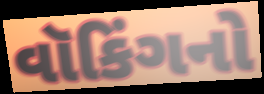
વૉકિંગનો